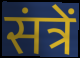
संत्रें